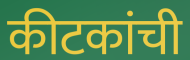
कीटकांची